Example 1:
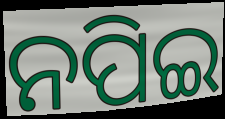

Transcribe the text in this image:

ନପିଇ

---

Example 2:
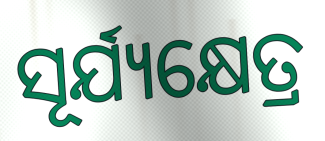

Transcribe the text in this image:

ସୂର୍ଯ୍ୟକ୍ଷେତ୍ର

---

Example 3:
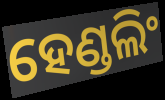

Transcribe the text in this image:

ହେଣ୍ଡଲିଂ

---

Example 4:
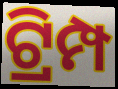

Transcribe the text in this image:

ଟ୍ରିମ୍ପ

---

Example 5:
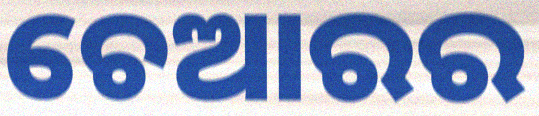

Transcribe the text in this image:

ଚେଆରର